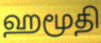
ஹமூதி